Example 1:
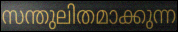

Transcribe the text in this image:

സന്തുലിതമാക്കുന്ന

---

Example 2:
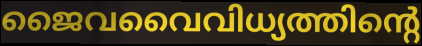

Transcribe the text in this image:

ജൈവവൈവിധ്യത്തിന്റെ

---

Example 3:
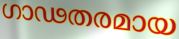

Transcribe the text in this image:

ഗാഢതരമായ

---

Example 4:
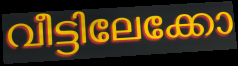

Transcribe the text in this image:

വീട്ടിലേക്കോ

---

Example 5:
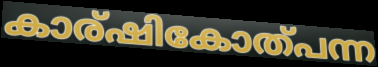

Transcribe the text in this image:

കാര്ഷികോത്പന്ന